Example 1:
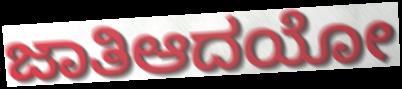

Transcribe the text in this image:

ಜಾತಿಆದಯೋ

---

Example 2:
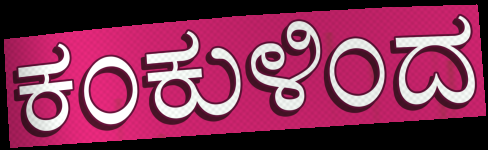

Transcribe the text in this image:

ಕಂಕುಳಿಂದ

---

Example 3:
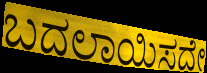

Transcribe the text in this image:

ಬದಲಾಯಿಸದೇ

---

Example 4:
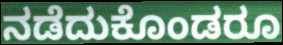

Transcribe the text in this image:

ನಡೆದುಕೊಂಡರೂ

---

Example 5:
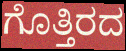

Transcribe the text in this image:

ಗೊತ್ತಿರದ